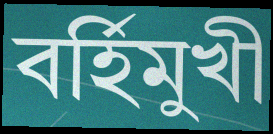
বর্হিমুখী